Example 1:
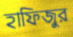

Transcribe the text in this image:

হাফিজুর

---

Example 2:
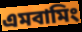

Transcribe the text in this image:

এমবামিং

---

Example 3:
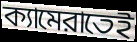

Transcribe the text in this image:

ক্যামেরাতেই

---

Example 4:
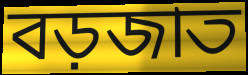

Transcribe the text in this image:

বড়জাত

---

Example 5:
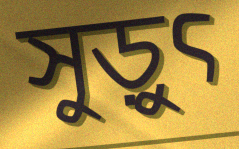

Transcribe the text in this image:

সুড়ুৎ